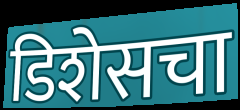
डिशेसचा